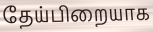
தேய்பிறையாக